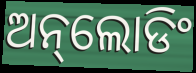
ଅନ୍‌ଲୋଡିଂ